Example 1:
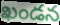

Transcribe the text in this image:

ఖండన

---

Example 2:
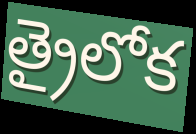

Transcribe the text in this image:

త్రైలోక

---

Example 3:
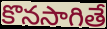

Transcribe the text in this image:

కొనసాగితే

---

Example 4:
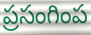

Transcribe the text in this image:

ప్రసంగింప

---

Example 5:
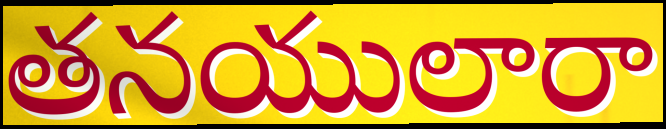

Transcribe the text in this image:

తనయులారా